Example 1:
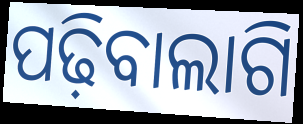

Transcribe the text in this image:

ପଢ଼ିବାଲାଗି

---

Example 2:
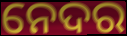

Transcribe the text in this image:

ନେଦର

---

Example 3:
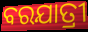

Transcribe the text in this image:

ବରଯାତ୍ରୀ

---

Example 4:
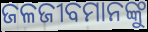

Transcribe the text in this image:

ଜଳଜୀବମାନଙ୍କୁ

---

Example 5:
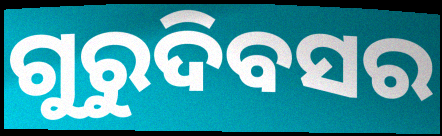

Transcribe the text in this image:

ଗୁରୁଦିବସର